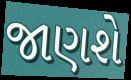
જાણશે